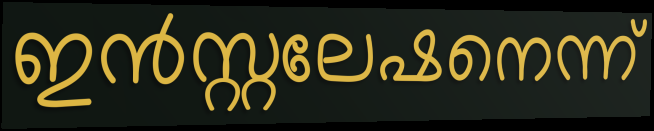
ഇൻസ്റ്റലേഷനെന്ന്